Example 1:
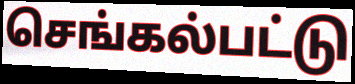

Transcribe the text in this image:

செங்கல்பட்டு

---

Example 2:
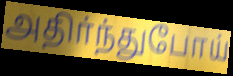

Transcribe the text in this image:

அதிர்ந்துபோய்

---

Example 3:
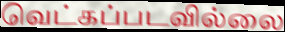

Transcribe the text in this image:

வெட்கப்படவில்லை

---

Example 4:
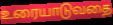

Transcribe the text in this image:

உரையாடுவதை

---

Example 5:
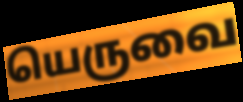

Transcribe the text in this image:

யெருவை